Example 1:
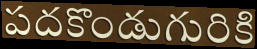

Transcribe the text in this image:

పదకొండుగురికి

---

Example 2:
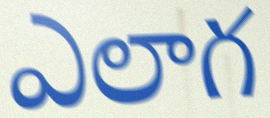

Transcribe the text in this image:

ఎలాగ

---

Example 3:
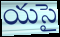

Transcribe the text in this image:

యసై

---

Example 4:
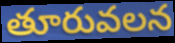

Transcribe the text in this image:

తూరువలన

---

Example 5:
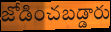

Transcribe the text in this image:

జోడించబడ్డారు